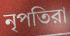
নৃপতিরা